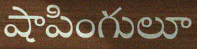
షాపింగులూ